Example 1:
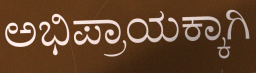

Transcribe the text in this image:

ಅಭಿಪ್ರಾಯಕ್ಕಾಗಿ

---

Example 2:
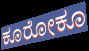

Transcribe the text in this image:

ಕೂರೋಕೂ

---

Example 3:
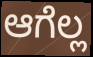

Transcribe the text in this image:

ಆಗೆಲ್ಲ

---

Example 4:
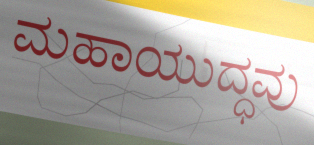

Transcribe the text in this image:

ಮಹಾಯುದ್ಧವು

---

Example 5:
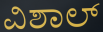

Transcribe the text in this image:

ವಿಶಾಲ್